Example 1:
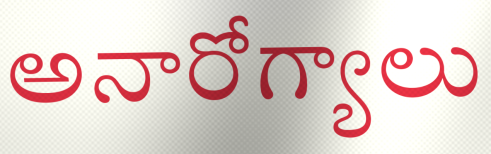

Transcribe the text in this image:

అనారోగ్యాలు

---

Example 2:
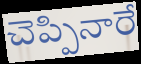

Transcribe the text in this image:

చెప్పినారే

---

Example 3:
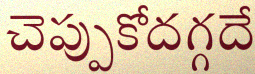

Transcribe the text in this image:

చెప్పుకోదగ్గదే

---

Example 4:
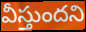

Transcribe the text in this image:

వీస్తుందని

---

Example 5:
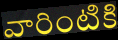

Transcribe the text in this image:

వారింటికి